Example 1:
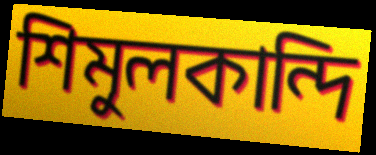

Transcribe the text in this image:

শিমুলকান্দি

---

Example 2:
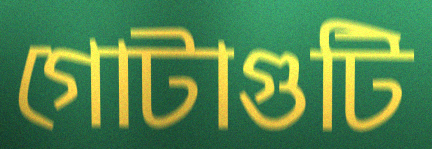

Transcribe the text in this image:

গোটাগুটি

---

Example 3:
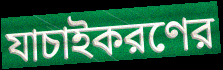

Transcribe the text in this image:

যাচাইকরণের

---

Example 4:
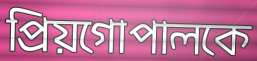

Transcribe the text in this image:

প্রিয়গোপালকে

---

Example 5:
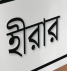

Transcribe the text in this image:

হীরার